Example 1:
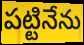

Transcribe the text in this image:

పట్టినేను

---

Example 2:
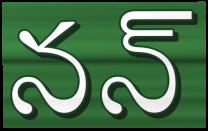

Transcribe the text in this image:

నన్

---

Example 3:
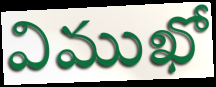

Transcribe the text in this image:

విముఖో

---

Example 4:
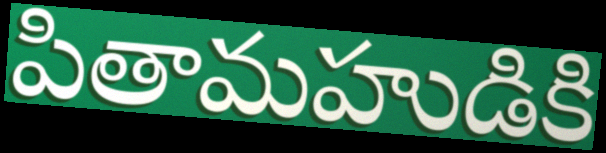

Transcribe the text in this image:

పితామహుడికి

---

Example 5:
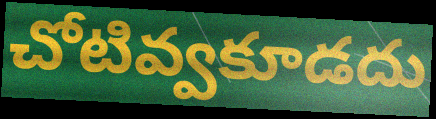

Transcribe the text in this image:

చోటివ్వకూడదు